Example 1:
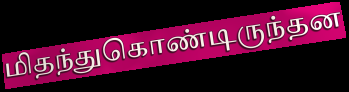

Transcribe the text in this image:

மிதந்துகொண்டிருந்தன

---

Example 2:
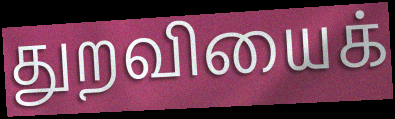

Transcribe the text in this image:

துறவியைக்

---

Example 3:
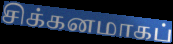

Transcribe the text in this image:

சிக்கனமாகப்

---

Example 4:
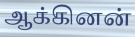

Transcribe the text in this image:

ஆக்கினன்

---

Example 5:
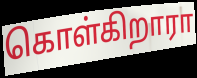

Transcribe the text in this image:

கொள்கிறாரா